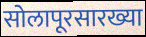
सोलापूरसारख्या